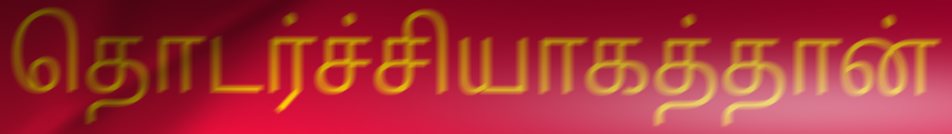
தொடர்ச்சியாகத்தான்